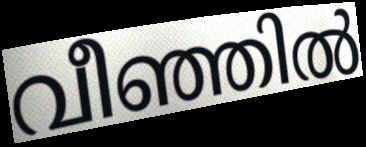
വീഞ്ഞിൽ